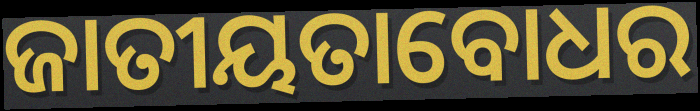
ଜାତୀୟତାବୋଧର